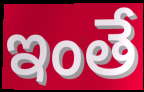
ఇంతే